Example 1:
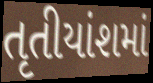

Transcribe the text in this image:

તૃતીયાંશમાં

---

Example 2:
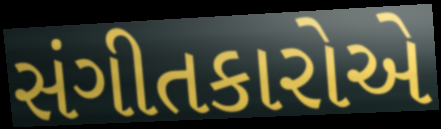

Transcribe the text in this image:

સંગીતકારોએ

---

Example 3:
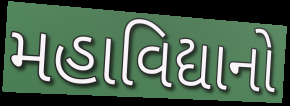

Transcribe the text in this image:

મહાવિદ્યાનો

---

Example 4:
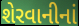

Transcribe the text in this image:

શેરવાનીનાં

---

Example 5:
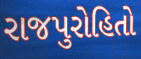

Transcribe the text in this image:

રાજપુરોહિતો